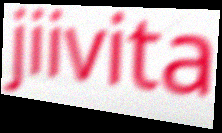
jiivita